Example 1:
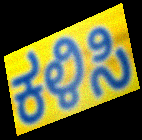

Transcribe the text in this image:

ಕಳಿಸಿ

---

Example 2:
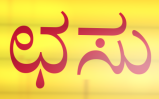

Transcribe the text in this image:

ಛಸು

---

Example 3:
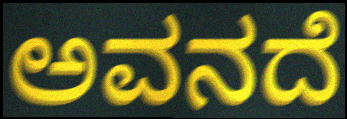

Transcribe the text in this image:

ಅವನದೆ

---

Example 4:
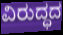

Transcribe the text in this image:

ವಿರುದ್ಧದ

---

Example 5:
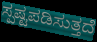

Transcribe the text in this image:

ಸ್ಪಷ್ಟಪಡಿಸುತ್ತದೆ